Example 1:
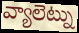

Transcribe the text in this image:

వ్యాలెట్ను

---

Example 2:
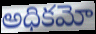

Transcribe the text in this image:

అధికమో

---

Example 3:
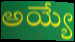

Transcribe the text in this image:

అయ్యే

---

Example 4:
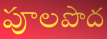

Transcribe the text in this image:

పూలపొద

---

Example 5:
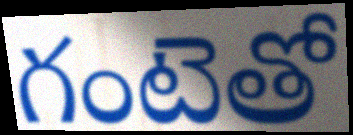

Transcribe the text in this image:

గంటెతో